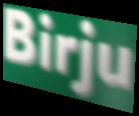
Birju